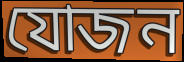
যোজন